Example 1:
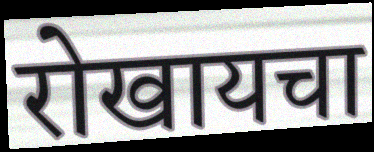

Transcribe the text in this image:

रोखायचा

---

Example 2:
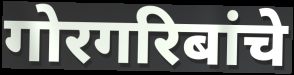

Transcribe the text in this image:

गोरगरिबांचे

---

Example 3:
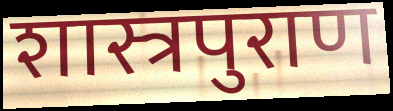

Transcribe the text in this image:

शास्त्रपुराण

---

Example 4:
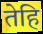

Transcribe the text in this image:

तेहि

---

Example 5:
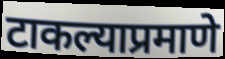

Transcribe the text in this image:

टाकल्याप्रमाणे